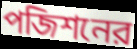
পজিশনের